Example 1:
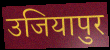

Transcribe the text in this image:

उजियापुर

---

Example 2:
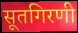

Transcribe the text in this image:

सूतगिरणी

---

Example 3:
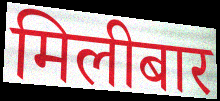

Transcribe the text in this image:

मिलीबार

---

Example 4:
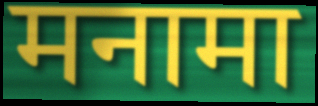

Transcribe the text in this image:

मनामा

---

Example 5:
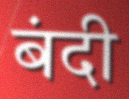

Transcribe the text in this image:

बंदी